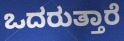
ಒದರುತ್ತಾರೆ